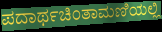
ಪದಾರ್ಥಚಿಂತಾಮಣಿಯಲ್ಲಿ